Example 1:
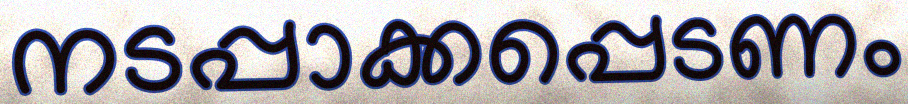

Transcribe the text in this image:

നടപ്പാക്കപ്പെടണം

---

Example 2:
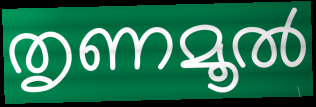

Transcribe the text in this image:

തൃണമൂൽ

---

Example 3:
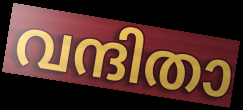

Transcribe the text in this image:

വന്ദിതാ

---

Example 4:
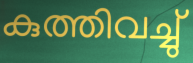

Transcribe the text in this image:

കുത്തിവച്ചു്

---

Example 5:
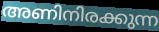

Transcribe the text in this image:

അണിനിരക്കുന്ന